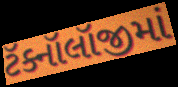
ટૅક્નૉલૉજીમાં